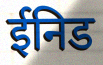
ईनिड